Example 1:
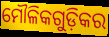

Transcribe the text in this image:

ମୌଳିକଗୁଡ଼ିକର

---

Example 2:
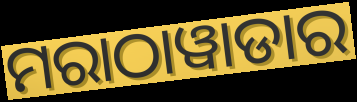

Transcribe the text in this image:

ମରାଠାୱାଡାର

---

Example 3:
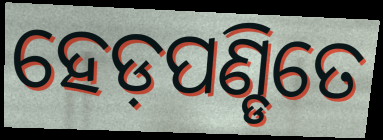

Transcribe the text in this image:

ହେଡ଼ପଣ୍ଡିତେ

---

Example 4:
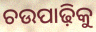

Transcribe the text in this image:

ଚଉପାଢ଼ିକୁ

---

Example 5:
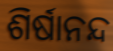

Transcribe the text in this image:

ଶିର୍ଷାନନ୍ଦ